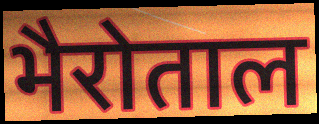
भैरोताल